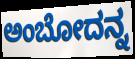
ಅಂಬೋದನ್ನ